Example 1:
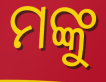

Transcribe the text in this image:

ମଙ୍କୁ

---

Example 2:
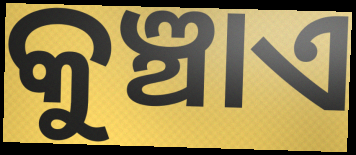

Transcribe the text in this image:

କୁଞ୍ଚାଏ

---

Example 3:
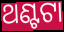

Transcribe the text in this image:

ଥଣ୍ଟଟା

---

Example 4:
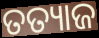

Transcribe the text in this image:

ତତ୍ୟାଜ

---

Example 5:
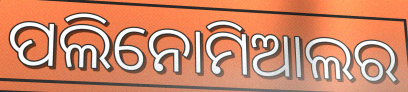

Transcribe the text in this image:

ପଲିନୋମିଆଲର